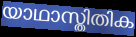
യാഥാസ്തിതിക